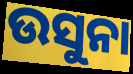
ଉସୁନା